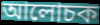
আলোচক